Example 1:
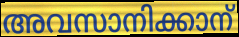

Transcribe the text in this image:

അവസാനിക്കാന്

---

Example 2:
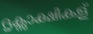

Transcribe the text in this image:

ദൃക്സാക്ഷികള്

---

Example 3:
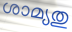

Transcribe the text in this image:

ശാമ്യതു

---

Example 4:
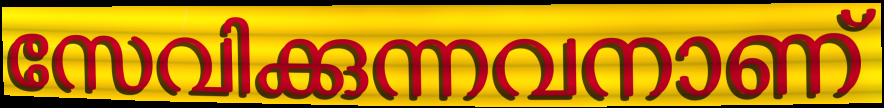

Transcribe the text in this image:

സേവിക്കുന്നവനാണ്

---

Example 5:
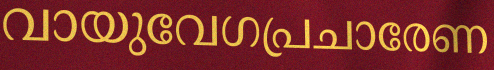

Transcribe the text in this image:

വായുവേഗപ്രചാരേണ